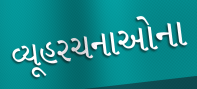
વ્યૂહરચનાઓના